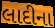
લાદીના